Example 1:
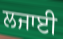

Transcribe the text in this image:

ਲਜਾਈ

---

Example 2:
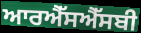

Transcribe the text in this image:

ਆਰਐੱਸਐੱਸਬੀ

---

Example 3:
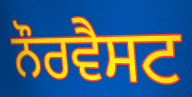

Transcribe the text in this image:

ਨੌਰਵੈਸਟ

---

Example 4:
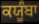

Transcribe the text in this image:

ਕਯੂੰਬਾ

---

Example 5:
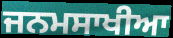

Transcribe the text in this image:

ਜਨਮਸਾਖੀਆ